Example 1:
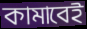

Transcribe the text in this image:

কামাবেই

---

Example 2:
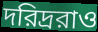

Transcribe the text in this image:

দরিদ্ররাও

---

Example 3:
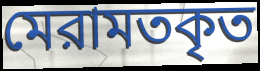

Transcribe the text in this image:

মেরামতকৃত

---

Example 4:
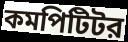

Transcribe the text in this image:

কমপিটিটর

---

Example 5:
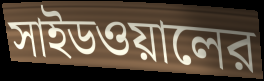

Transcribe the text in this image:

সাইডওয়ালের